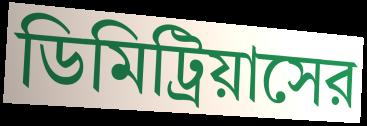
ডিমিট্রিয়াসের